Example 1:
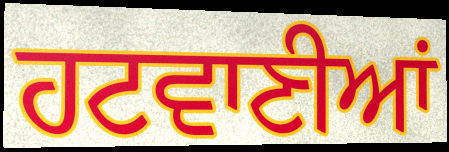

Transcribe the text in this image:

ਹਟਵਾਣੀਆਂ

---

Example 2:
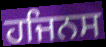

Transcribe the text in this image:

ਹਜਿਨਸ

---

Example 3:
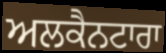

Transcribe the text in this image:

ਅਲਕੈਨਟਾਰਾ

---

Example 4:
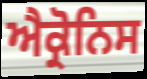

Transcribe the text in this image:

ਐਕ੍ਰੋਨਿਸ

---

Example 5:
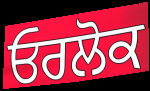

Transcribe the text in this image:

ਓਰਲੋਕ